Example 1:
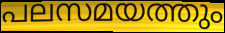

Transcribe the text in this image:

പലസമയത്തും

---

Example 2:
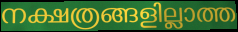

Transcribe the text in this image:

നക്ഷത്രങ്ങളില്ലാത്ത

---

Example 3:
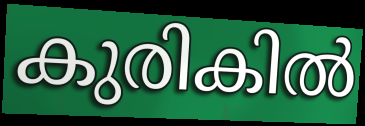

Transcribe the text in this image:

കുരികിൽ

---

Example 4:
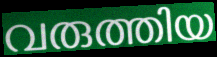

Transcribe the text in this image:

വരുത്തിയ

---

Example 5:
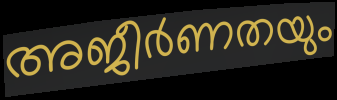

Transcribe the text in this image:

അജീർണതയും